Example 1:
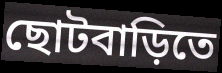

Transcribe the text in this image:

ছোটবাড়িতে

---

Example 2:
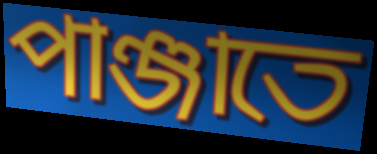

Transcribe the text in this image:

পাঞ্জাতে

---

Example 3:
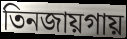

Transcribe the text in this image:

তিনজায়গায়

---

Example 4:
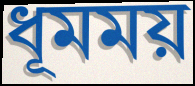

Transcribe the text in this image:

ধূমময়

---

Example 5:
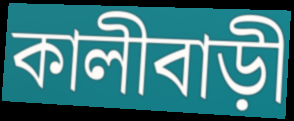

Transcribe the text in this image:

কালীবাড়ী